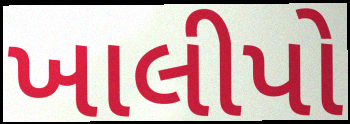
ખાલીપો